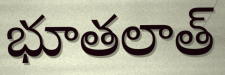
భూతలాత్